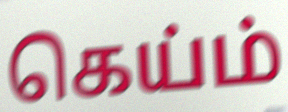
கெய்ம்